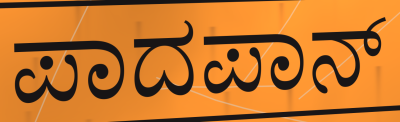
ಪಾದಪಾನ್